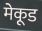
मेकूड